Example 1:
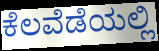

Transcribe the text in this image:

ಕೆಲವೆಡೆಯಲ್ಲಿ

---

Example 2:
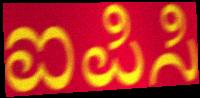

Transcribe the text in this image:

ಐಪಿಸಿ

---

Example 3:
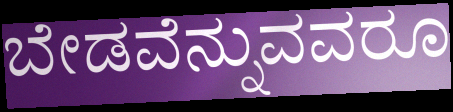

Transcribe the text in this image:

ಬೇಡವೆನ್ನುವವರೂ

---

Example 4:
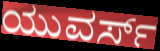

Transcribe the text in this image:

ಯುವರ್ಸ್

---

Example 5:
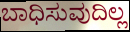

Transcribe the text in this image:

ಬಾಧಿಸುವುದಿಲ್ಲ